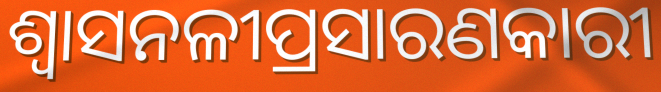
ଶ୍ୱାସନଳୀପ୍ରସାରଣକାରୀ